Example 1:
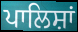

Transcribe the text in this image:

ਪਾਲਿਸ਼ਾਂ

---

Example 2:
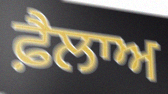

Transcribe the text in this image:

ਫ਼ੈਲਾਅ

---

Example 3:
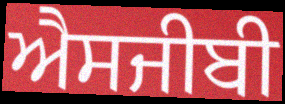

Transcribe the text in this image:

ਐਸਜੀਬੀ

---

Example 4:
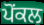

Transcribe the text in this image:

ਪੋਂਕਲ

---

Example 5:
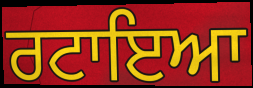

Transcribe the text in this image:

ਰਟਾਇਆ